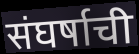
संघर्षाची